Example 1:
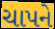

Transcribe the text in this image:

ચાપને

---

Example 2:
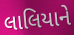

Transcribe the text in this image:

લાલિયાને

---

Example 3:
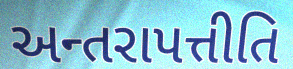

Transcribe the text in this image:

અન્તરાપત્તીતિ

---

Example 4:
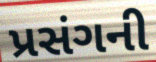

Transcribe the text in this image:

પ્રસંગની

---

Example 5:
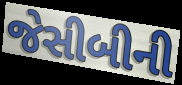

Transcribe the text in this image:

જેસીબીની